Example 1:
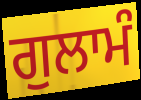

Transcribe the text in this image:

ਗੁਲਾਮੰ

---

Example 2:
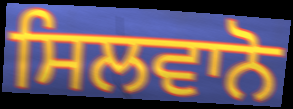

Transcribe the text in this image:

ਸਿਲਵਾਨੋ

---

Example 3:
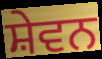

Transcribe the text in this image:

ਸ਼ੇਵਨ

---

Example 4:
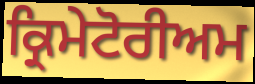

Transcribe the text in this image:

ਕ੍ਰਿਮੇਟੋਰੀਅਮ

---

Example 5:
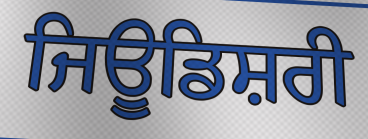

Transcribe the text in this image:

ਜਿਊਡਿਸ਼ਰੀ